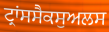
ਟ੍ਰਾਂਸਸੈਕਸੁਅਲਸ